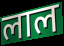
लाल